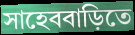
সাহেববাড়িতে